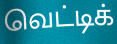
வெட்டிக்